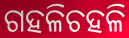
ଗହଳିଚହଳି